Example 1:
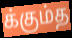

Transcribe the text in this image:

க்கும்த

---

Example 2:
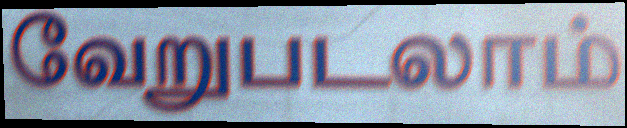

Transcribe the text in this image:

வேறுபடலாம்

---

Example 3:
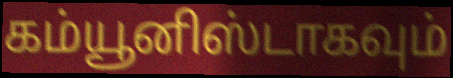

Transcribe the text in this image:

கம்யூனிஸ்டாகவும்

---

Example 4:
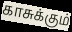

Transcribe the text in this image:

காசுக்கும்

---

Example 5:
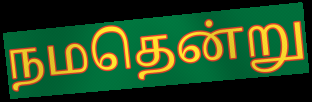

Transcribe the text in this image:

நமதென்று